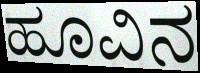
ಹೂವಿನ